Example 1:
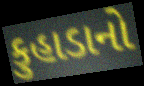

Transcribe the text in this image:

કુહાડાનો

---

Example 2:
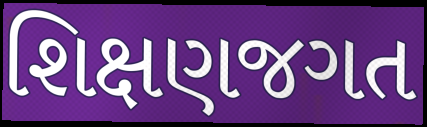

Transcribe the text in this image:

શિક્ષણજગત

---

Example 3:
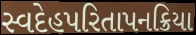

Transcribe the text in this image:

સ્વદેહપરિતાપનક્રિયા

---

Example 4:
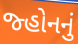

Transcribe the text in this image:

જ્હોનનું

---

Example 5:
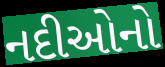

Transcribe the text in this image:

નદીઓનો